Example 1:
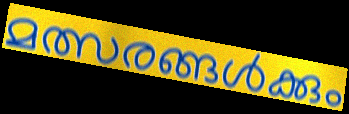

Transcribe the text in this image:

മത്സരങ്ങൾക്കും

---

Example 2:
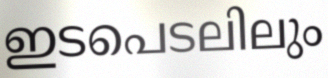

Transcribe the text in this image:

ഇടപെടലിലും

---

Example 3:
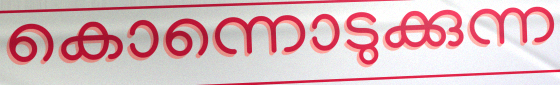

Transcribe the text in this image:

കൊന്നൊടുക്കുന്ന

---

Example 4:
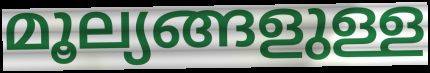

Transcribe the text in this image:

മൂല്യങ്ങളുള്ള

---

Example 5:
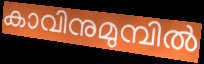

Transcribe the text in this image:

കാവിനുമുമ്പിൽ